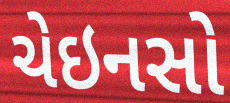
ચેઇનસો